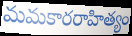
మమకారరాహిత్యం